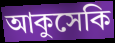
আকুসেকি